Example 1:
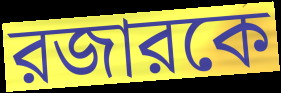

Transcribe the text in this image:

রজারকে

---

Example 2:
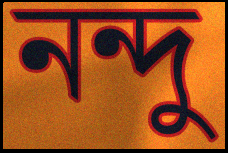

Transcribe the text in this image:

নন্দু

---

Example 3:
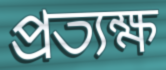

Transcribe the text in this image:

প্রত্যক্ষ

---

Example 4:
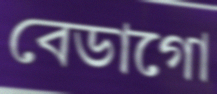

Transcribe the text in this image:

বেডাগো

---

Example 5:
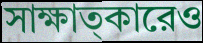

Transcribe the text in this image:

সাক্ষাত্কারেও